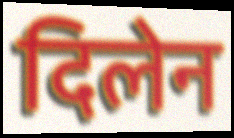
दिलेन